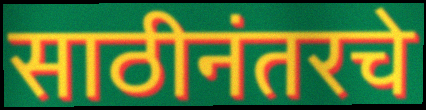
साठीनंतरचे